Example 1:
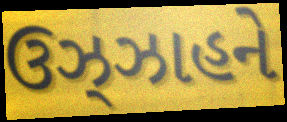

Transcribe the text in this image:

ઉઝ્ઝાહને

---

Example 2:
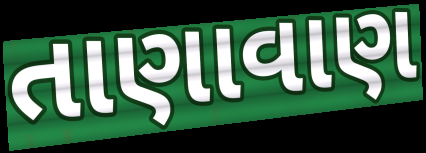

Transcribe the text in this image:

તાણાવાણ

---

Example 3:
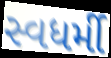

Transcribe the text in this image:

સ્વધર્મી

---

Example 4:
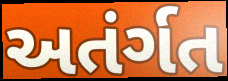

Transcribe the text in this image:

અતંર્ગત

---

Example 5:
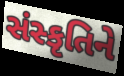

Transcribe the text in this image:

સંસ્કૃતિને